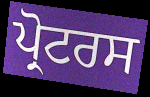
ਪ੍ਰੋਟਰਸ